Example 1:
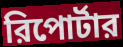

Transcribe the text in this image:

রিপোর্টার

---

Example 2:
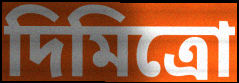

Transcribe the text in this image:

দিমিত্রো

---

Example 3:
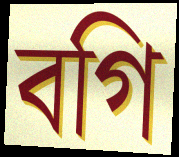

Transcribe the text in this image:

বগি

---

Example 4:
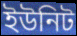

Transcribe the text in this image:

ইউনিট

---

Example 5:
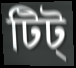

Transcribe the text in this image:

টিট্